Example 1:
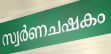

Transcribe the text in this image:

സ്വർണചഷകം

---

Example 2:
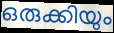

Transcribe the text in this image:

ഒരുക്കിയും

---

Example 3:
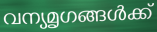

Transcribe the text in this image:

വന്യമൃഗങ്ങൾക്ക്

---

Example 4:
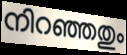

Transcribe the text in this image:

നിറഞ്ഞതും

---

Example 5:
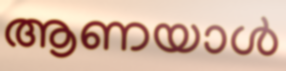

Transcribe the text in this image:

ആണയാൾ